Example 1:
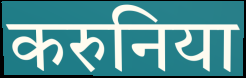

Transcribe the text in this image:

करुनिया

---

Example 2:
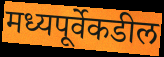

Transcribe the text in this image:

मध्यपूर्वेकडील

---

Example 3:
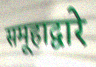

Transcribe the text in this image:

समूहाद्वारे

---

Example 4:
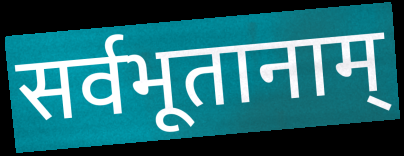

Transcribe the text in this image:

सर्वभूतानाम्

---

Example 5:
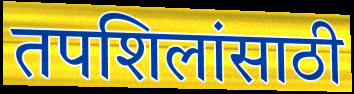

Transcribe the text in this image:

तपशिलांसाठी